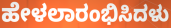
ಹೇಳಲಾರಂಭಿಸಿದಳು